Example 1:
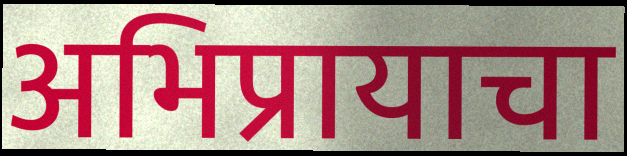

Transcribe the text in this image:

अभिप्रायाचा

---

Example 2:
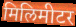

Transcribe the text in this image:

मिलिमीटर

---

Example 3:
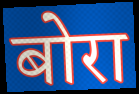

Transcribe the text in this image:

बोरा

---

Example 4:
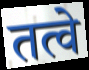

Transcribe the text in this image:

तत्वे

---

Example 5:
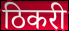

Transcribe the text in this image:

ठिकरी